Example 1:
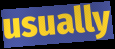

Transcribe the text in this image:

usually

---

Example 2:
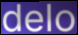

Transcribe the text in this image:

delo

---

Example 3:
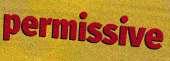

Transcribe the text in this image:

permissive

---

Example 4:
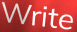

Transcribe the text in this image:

Write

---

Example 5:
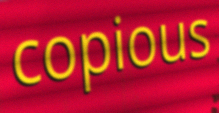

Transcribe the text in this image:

copious